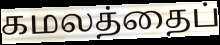
கமலத்தைப்